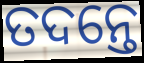
ତଦନ୍ତେ